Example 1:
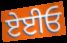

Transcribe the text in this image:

ਏਈਓ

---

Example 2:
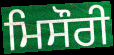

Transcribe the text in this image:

ਮਿਸੌਰੀ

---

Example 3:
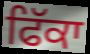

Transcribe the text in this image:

ਫਿੱਕਾ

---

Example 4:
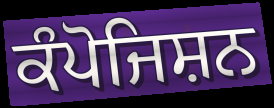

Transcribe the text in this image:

ਕੰਪੋਜਿਸ਼ਨ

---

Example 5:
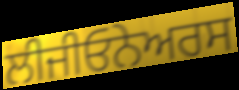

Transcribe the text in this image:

ਲੀਜੀਓਨੇਅਰਸ